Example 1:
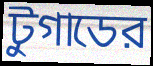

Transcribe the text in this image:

টুগাডের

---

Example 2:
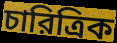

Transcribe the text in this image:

চারিত্রিক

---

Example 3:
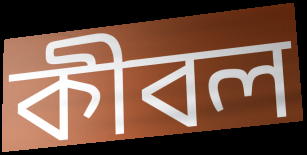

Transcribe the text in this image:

কীবল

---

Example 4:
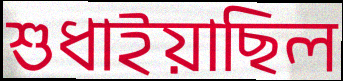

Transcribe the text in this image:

শুধাইয়াছিল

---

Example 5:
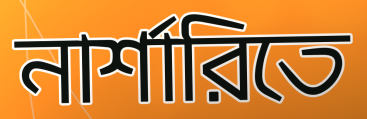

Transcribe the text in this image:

নার্শারিতে